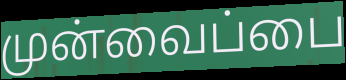
முன்வைப்பை